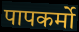
पापकर्मो